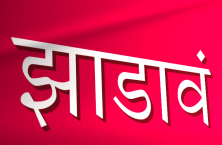
झाडावं